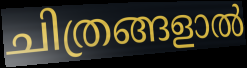
ചിത്രങ്ങളാൽ